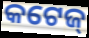
କଟେଜ୍